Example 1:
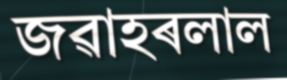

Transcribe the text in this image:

জৱাহৰলাল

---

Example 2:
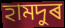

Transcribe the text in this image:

হামদুৰ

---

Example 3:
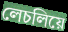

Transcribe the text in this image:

লেচলিয়ে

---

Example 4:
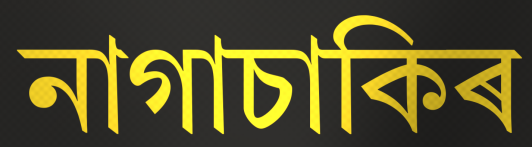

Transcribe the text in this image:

নাগাচাকিৰ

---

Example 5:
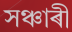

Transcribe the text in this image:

সঞ্চাৰী